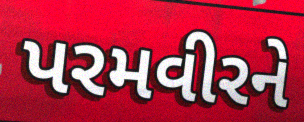
પરમવીરને